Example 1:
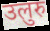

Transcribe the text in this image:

उलुरु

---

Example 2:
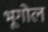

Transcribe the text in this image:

भूगोल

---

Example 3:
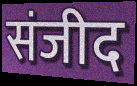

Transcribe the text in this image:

संजीद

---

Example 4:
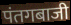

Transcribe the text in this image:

पंतगबाजी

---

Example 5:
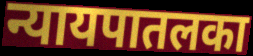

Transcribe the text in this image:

न्यायपातलका